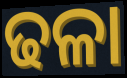
ଢଳା